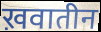
ख़वातीन